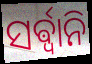
ସର୍ଵ୍ଵାନି